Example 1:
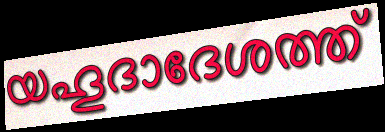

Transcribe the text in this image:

യഹൂദാദേശത്ത്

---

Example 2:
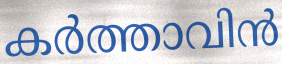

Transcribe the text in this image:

കർത്താവിൻ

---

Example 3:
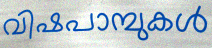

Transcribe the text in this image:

വിഷപാമ്പുകൾ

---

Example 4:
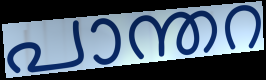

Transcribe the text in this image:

പാന്തറ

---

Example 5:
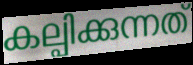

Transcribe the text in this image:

കല്പിക്കുന്നത്